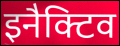
इनैक्टिव